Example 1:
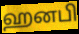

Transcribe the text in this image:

ஹனபி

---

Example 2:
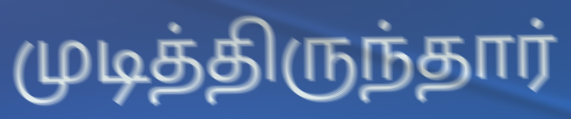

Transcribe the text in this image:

முடித்திருந்தார்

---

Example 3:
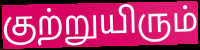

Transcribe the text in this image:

குற்றுயிரும்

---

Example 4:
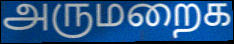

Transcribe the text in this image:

அருமறைக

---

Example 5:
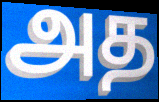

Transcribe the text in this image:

அத